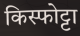
किस्फोट्टा